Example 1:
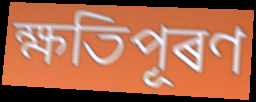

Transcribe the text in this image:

ক্ষতিপূৰণ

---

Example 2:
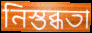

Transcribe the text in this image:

নিস্তব্ধতা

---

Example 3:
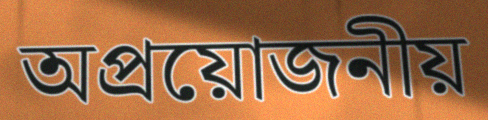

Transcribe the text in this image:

অপ্ৰয়োজনীয়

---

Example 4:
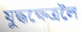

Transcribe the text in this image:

যুদ্ধক্ষেত্ৰলৈ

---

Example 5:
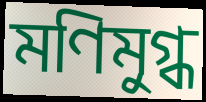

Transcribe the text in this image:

মণিমুগ্ধ